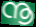
നൂ